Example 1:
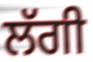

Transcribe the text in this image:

ਲੱਗੀ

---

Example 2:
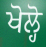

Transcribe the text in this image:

ਖੋਲ੍ਹੋ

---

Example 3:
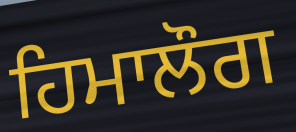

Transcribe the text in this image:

ਹਿਮਾਲੌਗ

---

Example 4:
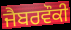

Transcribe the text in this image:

ਜੈਬਰਵੌਕੀ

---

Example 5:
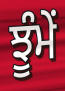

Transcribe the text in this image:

ਝੂੰਮੇਂ